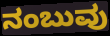
ನಂಬುವು